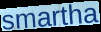
smartha